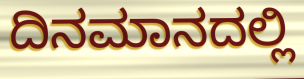
ದಿನಮಾನದಲ್ಲಿ